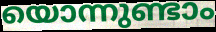
യൊന്നുണ്ടാം